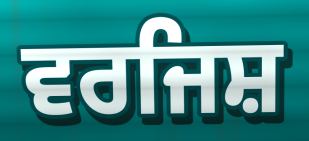
ਵਰਜਿਸ਼